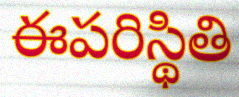
ఈపరిస్థితి